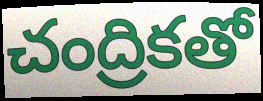
చంద్రికతో